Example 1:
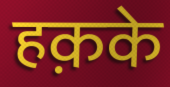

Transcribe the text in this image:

हक़के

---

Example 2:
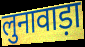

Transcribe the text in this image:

लुनावाड़ा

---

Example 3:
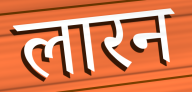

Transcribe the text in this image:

लारन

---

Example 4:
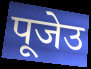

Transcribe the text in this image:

पूजेउ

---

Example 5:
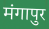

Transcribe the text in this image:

मंगापुर